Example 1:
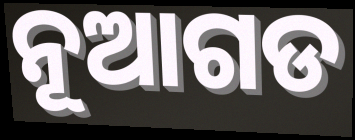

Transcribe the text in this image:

ନୂଆଗଡ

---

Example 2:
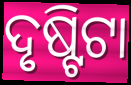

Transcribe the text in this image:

ଦୃଷ୍ଟିଟା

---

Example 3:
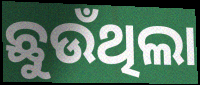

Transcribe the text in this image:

ଛୁଉଁଥିଲା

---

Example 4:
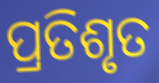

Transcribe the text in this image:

ପ୍ରତିଶୃତ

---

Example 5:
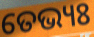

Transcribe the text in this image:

ତେଭ୍ୟଃ